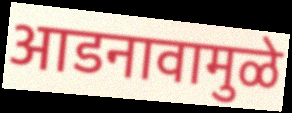
आडनावामुळे